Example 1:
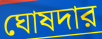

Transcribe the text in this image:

ঘোষদার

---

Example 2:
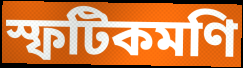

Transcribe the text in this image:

স্ফটিকমণি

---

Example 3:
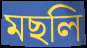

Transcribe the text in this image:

মছলি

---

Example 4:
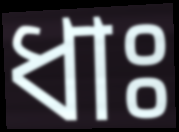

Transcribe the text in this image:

ধাঃ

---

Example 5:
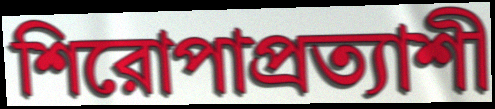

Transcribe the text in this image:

শিরোপাপ্রত্যাশী